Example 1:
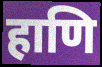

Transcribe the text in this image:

हाणि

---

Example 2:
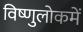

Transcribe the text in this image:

विष्णुलोकमें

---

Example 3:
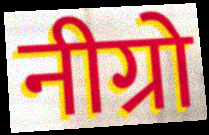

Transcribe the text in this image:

नीग्रो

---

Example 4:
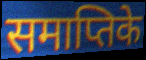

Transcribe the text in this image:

समाप्तिके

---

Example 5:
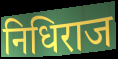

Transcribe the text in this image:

निधिराज